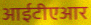
आईटीएआर